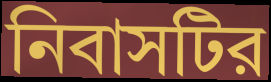
নিবাসটির